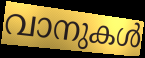
വാനുകൾ